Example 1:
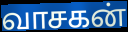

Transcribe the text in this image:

வாசகன்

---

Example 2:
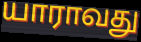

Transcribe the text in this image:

யாராவது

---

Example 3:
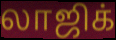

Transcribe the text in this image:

லாஜிக்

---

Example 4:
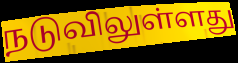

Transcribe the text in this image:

நடுவிலுள்ளது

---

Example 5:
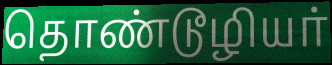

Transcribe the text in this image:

தொண்டூழியர்